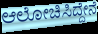
ಆಲೋಚಿಸಿದ್ದೇನೆ